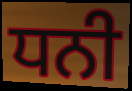
ਧਨੀ